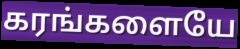
கரங்களையே